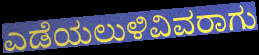
ಎಡೆಯಲುಳಿವಿವರಾಗು